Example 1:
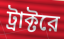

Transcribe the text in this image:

ট্রাক্টরে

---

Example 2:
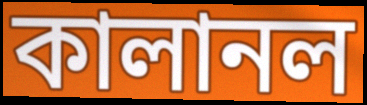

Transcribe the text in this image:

কালানল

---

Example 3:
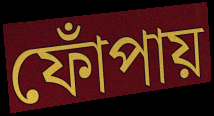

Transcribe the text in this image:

ফোঁপায়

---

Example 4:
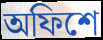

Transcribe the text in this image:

অফিশে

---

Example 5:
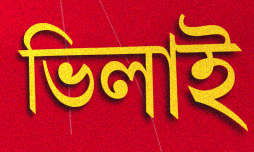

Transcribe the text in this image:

ভিলাই